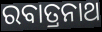
ରବାତ୍ରନାଥ